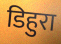
डिहुरा